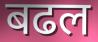
बढल